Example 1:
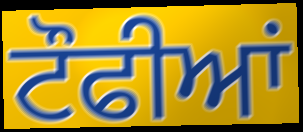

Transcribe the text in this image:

ਟੌਫੀਆਂ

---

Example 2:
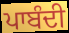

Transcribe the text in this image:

ਪਾਬੰਦੀ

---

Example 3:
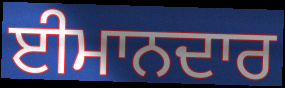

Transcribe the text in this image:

ਈਮਾਨਦਾਰ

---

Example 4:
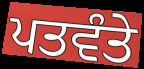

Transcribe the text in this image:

ਪਤਵੰਤੇ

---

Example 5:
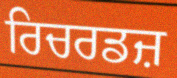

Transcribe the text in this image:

ਰਿਚਰਡਜ਼